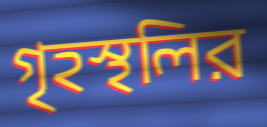
গৃহস্থলির